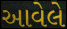
આવેલે